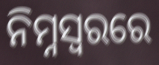
ନିମ୍ନସ୍ଵରରେ